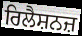
ਰਿਲੈਸ਼ਨਜ਼